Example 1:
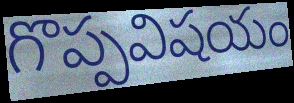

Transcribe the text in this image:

గొప్పవిషయం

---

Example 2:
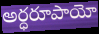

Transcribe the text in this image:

అర్ధరూపాయో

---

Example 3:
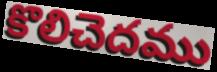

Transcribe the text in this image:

కొలిచెదము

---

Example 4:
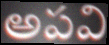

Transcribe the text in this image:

అపవి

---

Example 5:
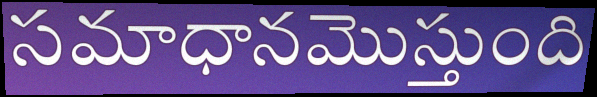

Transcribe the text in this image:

సమాధానమొస్తుంది